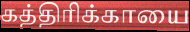
கத்திரிக்காயை